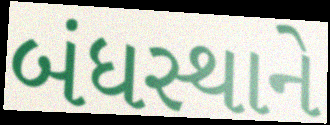
બંધસ્થાને